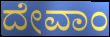
ದೇವಾಂ